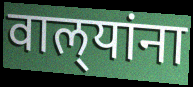
वाल्यांना